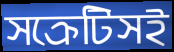
সক্রেটিসই